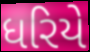
ધરિયે